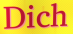
Dich